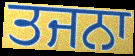
ਤਜਨਾ